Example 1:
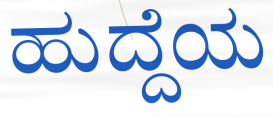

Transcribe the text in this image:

ಹುದ್ದೆಯ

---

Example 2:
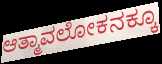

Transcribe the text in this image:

ಆತ್ಮಾವಲೋಕನಕ್ಕೂ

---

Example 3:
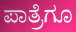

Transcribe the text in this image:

ಪಾತ್ರೆಗೂ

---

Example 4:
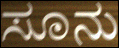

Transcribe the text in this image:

ಸೂನು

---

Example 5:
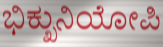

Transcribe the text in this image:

ಭಿಕ್ಖುನಿಯೋಪಿ